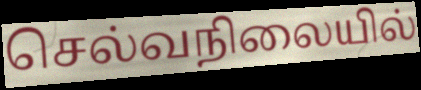
செல்வநிலையில்